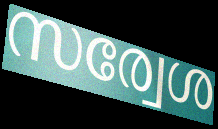
സര്വേശ